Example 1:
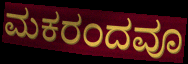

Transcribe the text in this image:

ಮಕರಂದವೂ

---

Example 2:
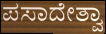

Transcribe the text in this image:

ಪಸಾದೇತ್ವಾ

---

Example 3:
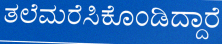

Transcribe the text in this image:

ತಲೆಮರೆಸಿಕೊಂಡಿದ್ದಾರೆ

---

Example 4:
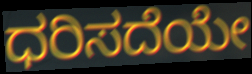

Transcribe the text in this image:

ಧರಿಸದೆಯೇ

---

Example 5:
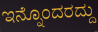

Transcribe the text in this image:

ಇನ್ನೊಂದರದ್ದು